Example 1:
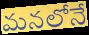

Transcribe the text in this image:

మనలోనే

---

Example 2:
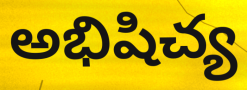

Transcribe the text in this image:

అభిషిచ్య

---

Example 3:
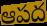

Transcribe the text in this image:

ఆపద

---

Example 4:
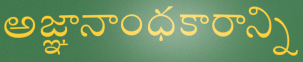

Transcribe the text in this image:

అజ్ఞానాంధకారాన్ని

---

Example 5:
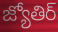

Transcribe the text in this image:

జ్యోతిర్